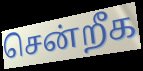
சென்றீக